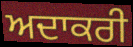
ਅਦਾਕਰੀ